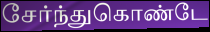
சேர்ந்துகொண்டே